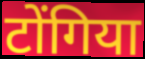
टोंगिया